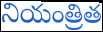
నియంత్రిత